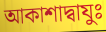
আকাশাদ্বাযুঃ